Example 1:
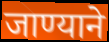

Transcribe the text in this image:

जाण्याने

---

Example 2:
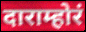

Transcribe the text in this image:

दाराम्होरं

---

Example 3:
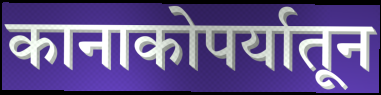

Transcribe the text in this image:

कानाकोपर्यातून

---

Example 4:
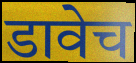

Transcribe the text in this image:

डावेच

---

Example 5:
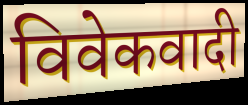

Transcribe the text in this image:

विवेकवादी